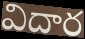
విదార